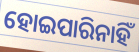
ହୋଇପାରିନାହିଁ